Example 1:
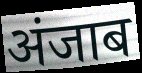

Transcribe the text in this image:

अंजाब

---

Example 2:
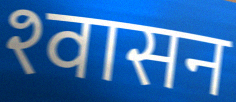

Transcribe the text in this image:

श्वासन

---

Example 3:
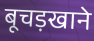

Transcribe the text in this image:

बूचड़खाने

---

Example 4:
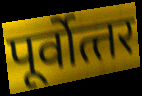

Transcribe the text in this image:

पूर्वोत्‍तर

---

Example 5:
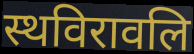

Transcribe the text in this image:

स्थविरावलि